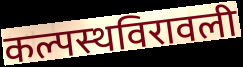
कल्पस्थविरावली